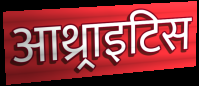
आथ्र्राइटिस